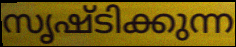
സൃഷ്ടിക്കുന്ന